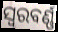
ସ୍ୱରବର୍ଣ୍ଣ